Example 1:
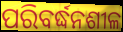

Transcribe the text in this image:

ପରିବର୍ଦ୍ଧନଶୀଳ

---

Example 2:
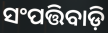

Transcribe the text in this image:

ସଂପତ୍ତିବାଡ଼ି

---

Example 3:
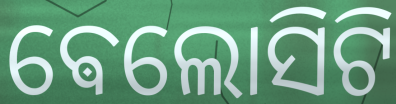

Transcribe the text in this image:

ଵେଲୋସିଟି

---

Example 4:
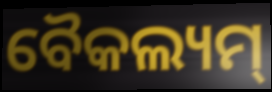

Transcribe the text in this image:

ବୈକଲ୍ୟମ୍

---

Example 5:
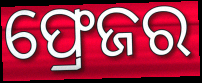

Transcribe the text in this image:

ଫ୍ରେଜର